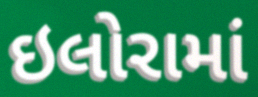
ઇલોરામાં